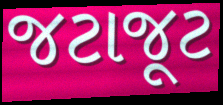
જટાજૂટ